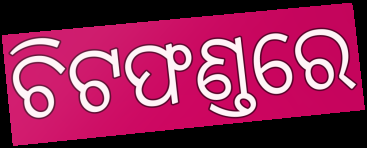
ଚିଟଫଣ୍ଡରେ